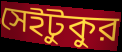
সেইটুকুর